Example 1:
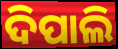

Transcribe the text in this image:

ଦିପାଲି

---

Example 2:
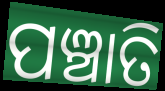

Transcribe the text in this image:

ପଞ୍ଚାତି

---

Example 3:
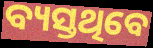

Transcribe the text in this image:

ବ୍ୟସ୍ତଥିବେ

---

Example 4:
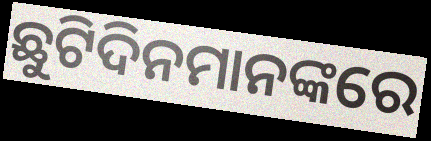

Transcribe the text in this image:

ଛୁଟିଦିନମାନଙ୍କରେ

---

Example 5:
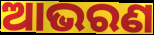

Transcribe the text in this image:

ଆଭରଣ